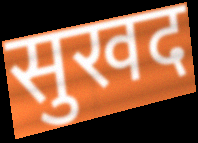
सुखद